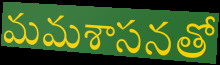
మమశాసనతో